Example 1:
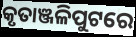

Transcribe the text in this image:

କୃତାଞ୍ଜଳିପୁଟରେ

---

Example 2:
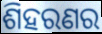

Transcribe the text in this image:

ଶିହରଣର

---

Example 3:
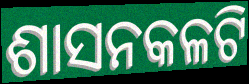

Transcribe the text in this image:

ଶାସନକଳଟି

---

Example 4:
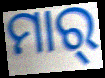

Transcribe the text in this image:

ମାର୍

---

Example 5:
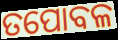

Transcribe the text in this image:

ତପୋବଳ